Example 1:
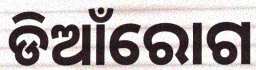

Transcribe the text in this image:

ଡିଆଁରୋଗ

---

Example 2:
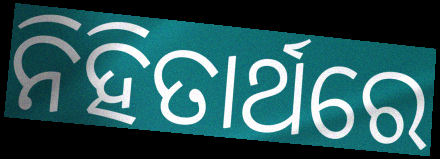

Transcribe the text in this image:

ନିହିତାର୍ଥରେ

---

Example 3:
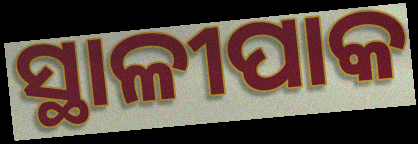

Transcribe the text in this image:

ସ୍ଥାଳୀପାକ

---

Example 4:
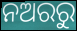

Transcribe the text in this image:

ନଅରରୁ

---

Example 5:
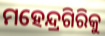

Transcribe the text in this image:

ମହେନ୍ଦ୍ରଗିରିକୁ